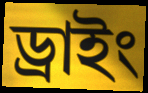
ড্রাইং